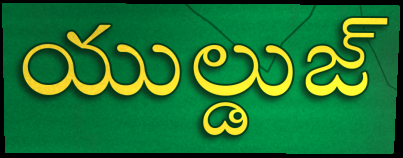
యుల్డుజ్